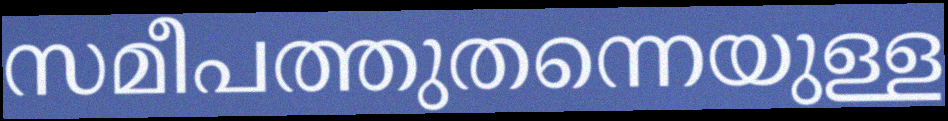
സമീപത്തുതന്നെയുള്ള